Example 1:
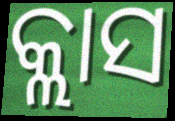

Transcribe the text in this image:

କ୍ଲାସ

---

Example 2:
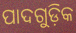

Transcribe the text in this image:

ପାଦଗୁଡ଼ିକ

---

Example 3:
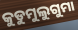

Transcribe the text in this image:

କୁଡୁମୁଲୁଗୁମା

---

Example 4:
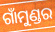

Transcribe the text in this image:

ଗାଁମୁଣ୍ଡର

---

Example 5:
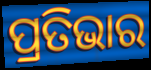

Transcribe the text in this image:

ପ୍ରତିଭାର